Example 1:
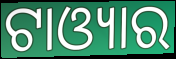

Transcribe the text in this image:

ଟାଓ୍ୟାର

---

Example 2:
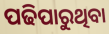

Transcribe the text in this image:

ପଢିପାରୁଥିବା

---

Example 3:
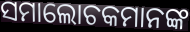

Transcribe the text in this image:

ସମାଲୋଚକମାନଙ୍କ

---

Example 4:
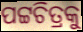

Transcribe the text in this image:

ପଟ୍ଟଚିତ୍ରକୁ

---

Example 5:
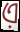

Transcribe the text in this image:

ଏ଼